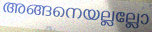
അങ്ങനെയല്ലല്ലോ